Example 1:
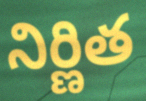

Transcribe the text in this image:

నిర్ణిత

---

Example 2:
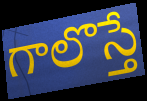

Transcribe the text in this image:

గాలొస్తే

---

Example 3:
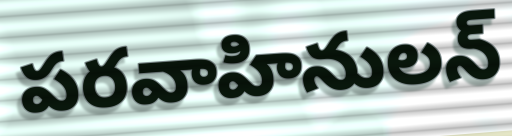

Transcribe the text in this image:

పరవాహినులన్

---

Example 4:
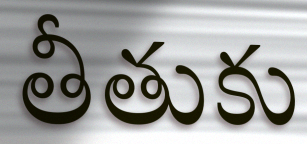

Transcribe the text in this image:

తీతుకు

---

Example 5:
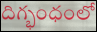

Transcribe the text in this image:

దిగ్భంధంలో